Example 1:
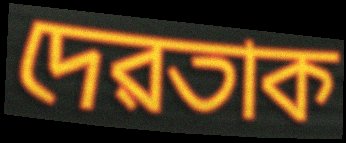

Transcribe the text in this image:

দেৱতাক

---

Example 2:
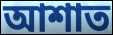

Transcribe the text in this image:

আশাত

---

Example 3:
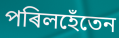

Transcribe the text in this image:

পৰিলহেঁতেন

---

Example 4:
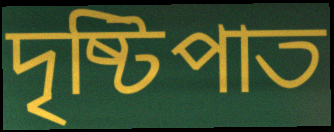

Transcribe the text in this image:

দৃষ্টিপাত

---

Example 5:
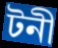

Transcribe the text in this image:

টনী